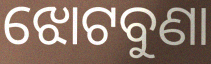
ଝୋଟବୁଣା